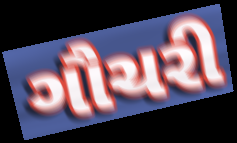
ગૌચરી